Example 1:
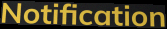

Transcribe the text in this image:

Notification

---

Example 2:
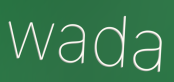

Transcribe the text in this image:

wada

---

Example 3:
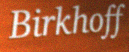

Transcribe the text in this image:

Birkhoff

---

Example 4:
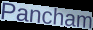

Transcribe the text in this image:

Pancham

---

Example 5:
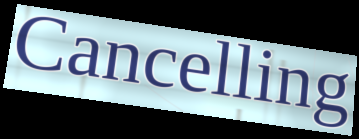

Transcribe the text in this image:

Cancelling